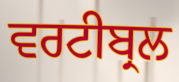
ਵਰਟੀਬ੍ਰਲ